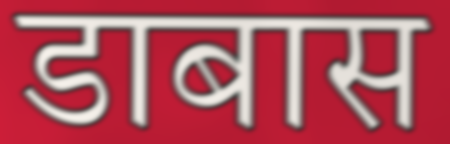
डाबास